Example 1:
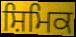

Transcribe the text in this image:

ਸ਼ਿਮਿਕ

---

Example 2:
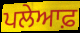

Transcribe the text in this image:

ਪਲੇਆਫ਼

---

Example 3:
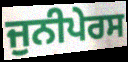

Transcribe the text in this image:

ਜੁਨੀਪੇਰਸ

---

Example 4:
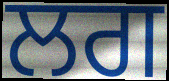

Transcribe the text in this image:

ਲਗ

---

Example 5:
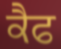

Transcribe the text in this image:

ਕੈਫ